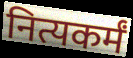
नित्यकर्मं